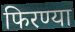
फिरण्या